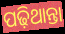
ପଢ଼ିଥାନ୍ତା